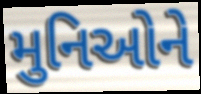
મુનિઓને